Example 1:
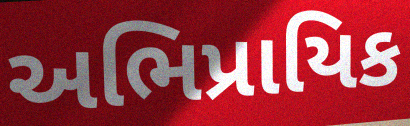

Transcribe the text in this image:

અભિપ્રાયિક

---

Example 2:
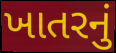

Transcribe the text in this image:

ખાતરનું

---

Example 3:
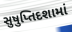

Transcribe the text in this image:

સુષુપ્તિદશામાં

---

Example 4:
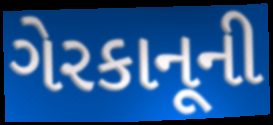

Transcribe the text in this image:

ગેરકાનૂની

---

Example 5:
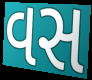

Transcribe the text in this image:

વસ